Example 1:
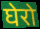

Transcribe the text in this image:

घेरो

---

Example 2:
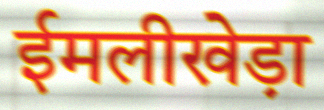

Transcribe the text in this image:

ईमलीखेड़ा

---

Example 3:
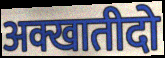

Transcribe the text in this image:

अक्खातीदो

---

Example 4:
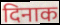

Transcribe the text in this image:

दिनाक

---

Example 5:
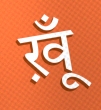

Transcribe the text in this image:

ख़ूँ